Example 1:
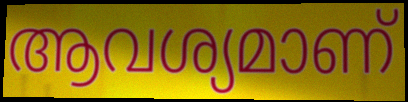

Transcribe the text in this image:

ആവശ്യമാണ്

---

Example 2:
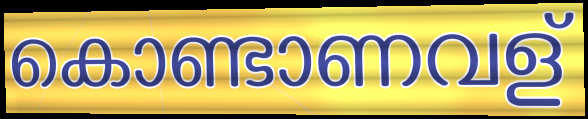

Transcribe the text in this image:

കൊണ്ടാണവള്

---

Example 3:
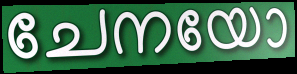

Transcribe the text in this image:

ചേനയോ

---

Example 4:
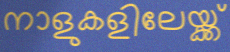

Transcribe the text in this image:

നാളുകളിലേയ്ക്ക്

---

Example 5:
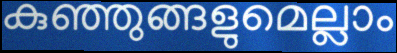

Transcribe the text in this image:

കുഞ്ഞുങ്ങളുമെല്ലാം